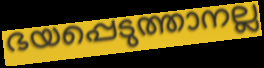
ഭയപ്പെടുത്താനല്ല